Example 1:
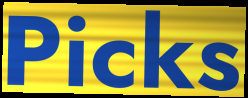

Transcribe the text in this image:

Picks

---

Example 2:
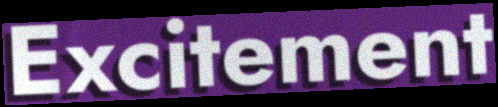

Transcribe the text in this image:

Excitement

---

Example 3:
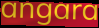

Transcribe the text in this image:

angara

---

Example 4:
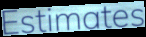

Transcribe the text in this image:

Estimates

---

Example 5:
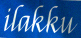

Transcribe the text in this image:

ilakku